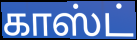
காஸ்ட்